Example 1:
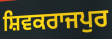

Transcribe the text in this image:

ਸ਼ਿਵਕਰਾਜਪੁਰ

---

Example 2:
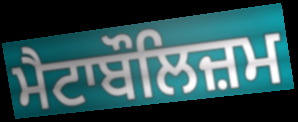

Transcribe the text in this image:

ਮੈਟਾਬੌਲਿਜ਼ਮ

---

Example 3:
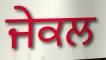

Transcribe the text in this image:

ਜੇਕਲ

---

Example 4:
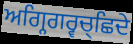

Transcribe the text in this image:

ਅਗ੍ਨਿਗਰ੍ਵਚ੍ਛਿਦੇ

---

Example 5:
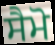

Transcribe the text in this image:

ਸੈਮੋ